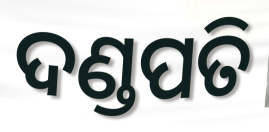
ଦଣ୍ଡପତି